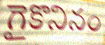
గైకొనినం